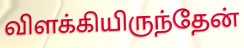
விளக்கியிருந்தேன்